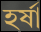
হর্ষা